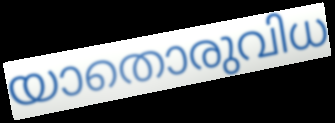
യാതൊരുവിധ